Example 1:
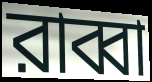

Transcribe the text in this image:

রাব্বা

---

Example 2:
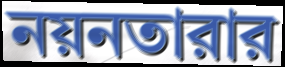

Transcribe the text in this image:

নয়নতারার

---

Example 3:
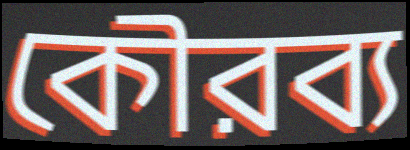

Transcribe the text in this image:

কৌরব্য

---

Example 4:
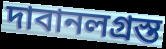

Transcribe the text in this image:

দাবানলগ্রস্ত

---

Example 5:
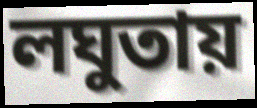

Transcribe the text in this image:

লঘুতায়